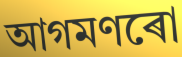
আগমণৰো